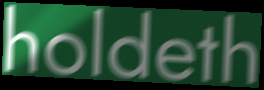
holdeth